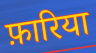
फ़ारिया